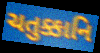
ચતુક્કાનિ